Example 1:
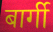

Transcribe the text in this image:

बार्गी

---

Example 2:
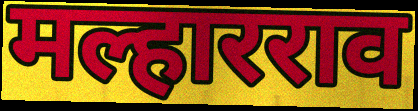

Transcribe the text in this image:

मल्हारराव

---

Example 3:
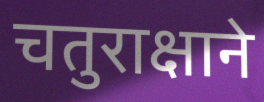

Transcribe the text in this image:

चतुराक्षाने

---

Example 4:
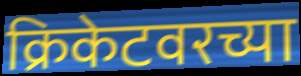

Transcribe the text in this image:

क्रिकेटवरच्या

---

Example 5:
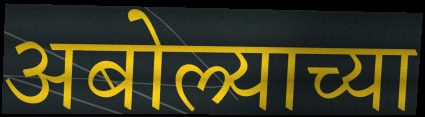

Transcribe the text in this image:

अबोल्याच्या